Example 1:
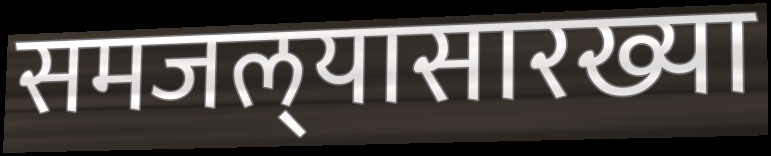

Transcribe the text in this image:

समजल्यासारख्या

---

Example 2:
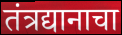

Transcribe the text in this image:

तंत्रद्यानाचा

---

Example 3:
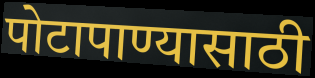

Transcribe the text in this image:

पोटापाण्यासाठी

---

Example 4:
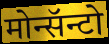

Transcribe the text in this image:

मोन्सॅन्टो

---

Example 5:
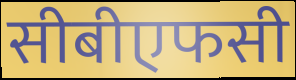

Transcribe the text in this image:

सीबीएफसी